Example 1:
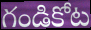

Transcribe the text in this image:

గండికోట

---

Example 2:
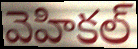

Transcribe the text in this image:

వెహికల్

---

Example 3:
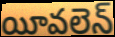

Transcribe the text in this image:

యీవలెన్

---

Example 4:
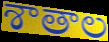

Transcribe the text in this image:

శాతాల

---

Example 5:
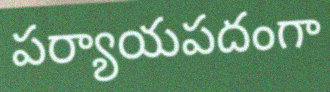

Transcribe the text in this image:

పర్యాయపదంగా